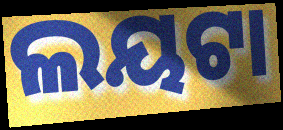
ଲୟଟା